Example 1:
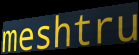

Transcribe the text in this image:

meshtru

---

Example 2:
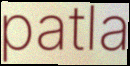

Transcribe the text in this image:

patla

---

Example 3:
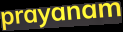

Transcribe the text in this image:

prayanam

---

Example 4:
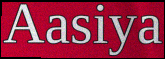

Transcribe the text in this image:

Aasiya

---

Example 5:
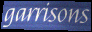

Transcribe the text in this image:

garrisons